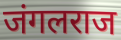
जंगलराज